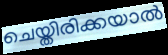
ചെയ്തിരിക്കയാൽ